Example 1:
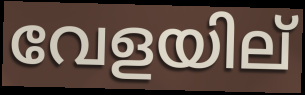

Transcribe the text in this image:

വേളയില്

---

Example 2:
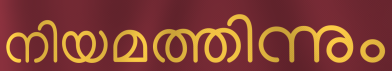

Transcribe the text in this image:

നിയമത്തിന്നും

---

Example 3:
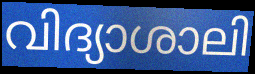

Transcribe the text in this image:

വിദ്യാശാലി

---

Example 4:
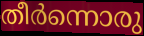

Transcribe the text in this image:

തീർന്നൊരു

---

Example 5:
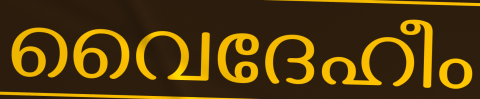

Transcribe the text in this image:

വൈദേഹീം